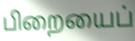
பிறையைப்